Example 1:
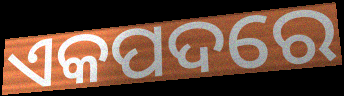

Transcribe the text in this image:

ଏକପଦରେ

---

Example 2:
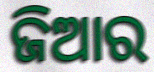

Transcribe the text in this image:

ଜିଆର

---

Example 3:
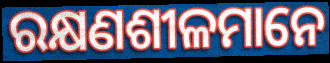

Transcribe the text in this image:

ରକ୍ଷଣଶୀଳମାନେ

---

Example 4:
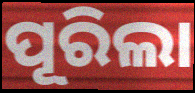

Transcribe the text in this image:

ପୂରିଲା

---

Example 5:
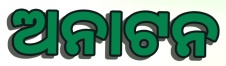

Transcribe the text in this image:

ଅନାଟନ